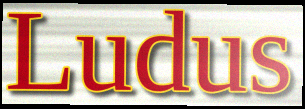
Ludus